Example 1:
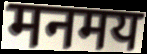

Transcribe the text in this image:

मनमय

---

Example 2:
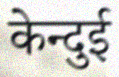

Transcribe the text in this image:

केन्दुई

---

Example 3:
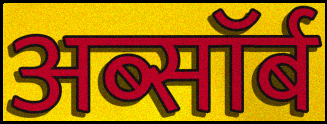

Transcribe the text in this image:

अब्सॉर्ब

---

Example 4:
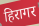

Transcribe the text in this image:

हिरागर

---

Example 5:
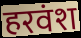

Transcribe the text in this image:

हरवंश